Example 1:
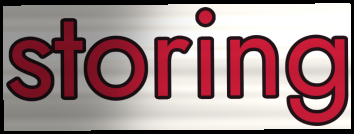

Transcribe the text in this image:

storing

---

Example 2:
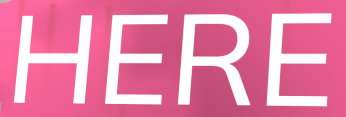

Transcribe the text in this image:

HERE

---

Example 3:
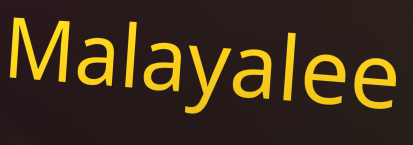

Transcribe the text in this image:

Malayalee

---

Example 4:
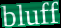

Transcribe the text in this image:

bluff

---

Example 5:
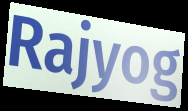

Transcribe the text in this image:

Rajyog